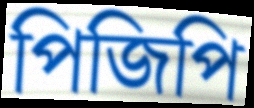
পিজিপি